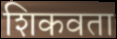
शिकवता